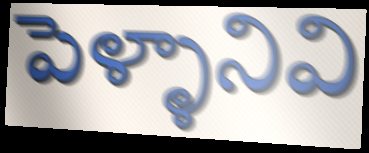
పెళ్ళానివి